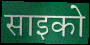
साइको